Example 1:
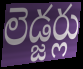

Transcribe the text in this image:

లెడ్జర్లు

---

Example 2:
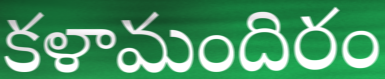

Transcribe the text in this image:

కళామందిరం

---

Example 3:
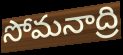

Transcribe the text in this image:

సోమనాద్రి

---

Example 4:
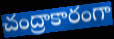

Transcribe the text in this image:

చంద్రాకారంగా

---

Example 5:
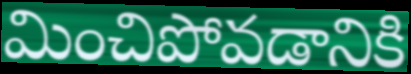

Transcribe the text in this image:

మించిపోవడానికి